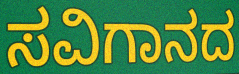
ಸವಿಗಾನದ